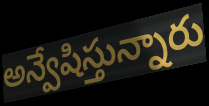
అన్వేషిస్తున్నారు